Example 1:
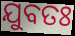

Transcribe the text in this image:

ଯୁବତଃ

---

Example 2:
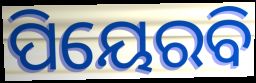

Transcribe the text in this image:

ପିୟେରବି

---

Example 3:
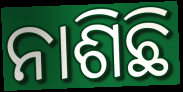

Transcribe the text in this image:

ନାଶିଛି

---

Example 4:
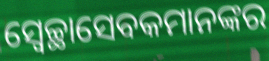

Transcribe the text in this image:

ସ୍ୱେଚ୍ଛାସେବକମାନଙ୍କର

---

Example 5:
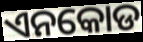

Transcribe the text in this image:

ଏନକୋଡ